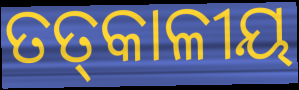
ତତ୍‌କାଳୀୟ